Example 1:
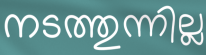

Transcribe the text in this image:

നടത്തുന്നില്ല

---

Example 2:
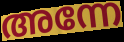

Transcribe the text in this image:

അന്നേ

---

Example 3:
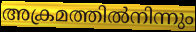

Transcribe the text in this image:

അക്രമത്തിൽനിന്നും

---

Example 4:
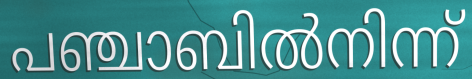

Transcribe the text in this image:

പഞ്ചാബിൽനിന്ന്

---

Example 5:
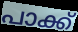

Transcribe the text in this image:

പാക്ക്